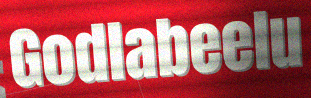
Godlabeelu